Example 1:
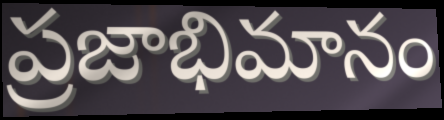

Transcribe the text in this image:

ప్రజాభిమానం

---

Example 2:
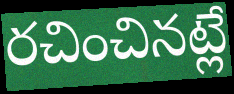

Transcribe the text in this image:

రచించినట్లే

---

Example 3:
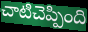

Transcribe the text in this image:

చాటిచెప్పింది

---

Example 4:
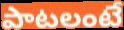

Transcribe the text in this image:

పాటలంటే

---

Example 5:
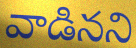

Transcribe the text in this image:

వాడినని